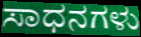
ಸಾಧನಗಳು